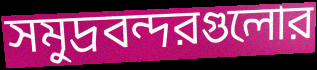
সমুদ্রবন্দরগুলোর